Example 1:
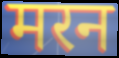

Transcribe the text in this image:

मरन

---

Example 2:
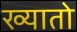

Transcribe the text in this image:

ख्यातो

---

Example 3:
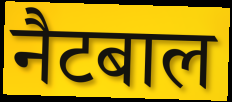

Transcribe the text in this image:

नैटबाल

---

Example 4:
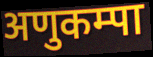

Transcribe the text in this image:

अणुकम्पा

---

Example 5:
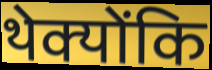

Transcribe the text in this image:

थेक्योंकि